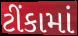
ટીંકામાં